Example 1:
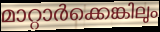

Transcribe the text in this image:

മാറ്റാർക്കെങ്കിലും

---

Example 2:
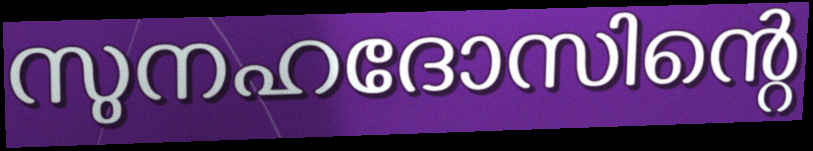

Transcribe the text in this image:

സുനഹദോസിന്റെ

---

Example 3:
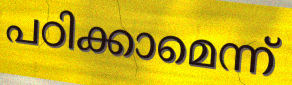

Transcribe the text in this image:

പഠിക്കാമെന്ന്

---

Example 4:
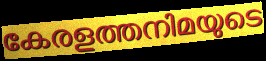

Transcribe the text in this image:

കേരളത്തനിമയുടെ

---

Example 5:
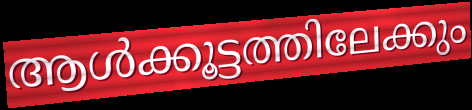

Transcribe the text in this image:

ആൾക്കൂട്ടത്തിലേക്കും